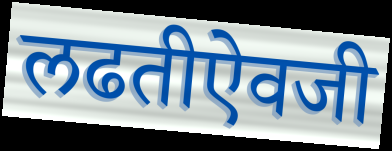
लढतीऐवजी